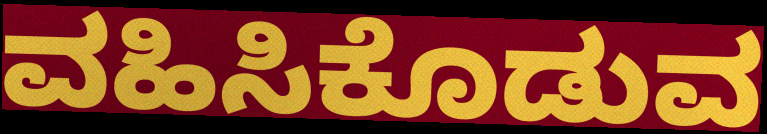
ವಹಿಸಿಕೊಡುವ